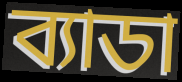
ব্যাডা